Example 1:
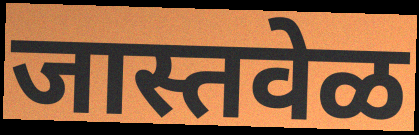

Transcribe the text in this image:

जास्तवेळ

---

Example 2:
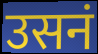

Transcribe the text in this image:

उसनं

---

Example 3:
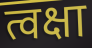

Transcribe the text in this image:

त्वक्षा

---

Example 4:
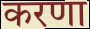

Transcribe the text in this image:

करणा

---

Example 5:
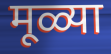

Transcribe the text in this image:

मूळ्या